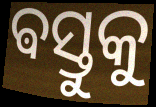
ଵସ୍ତୁକୁ